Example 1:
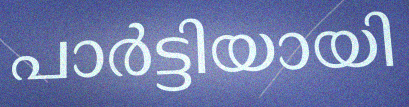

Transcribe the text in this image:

പാർട്ടിയായി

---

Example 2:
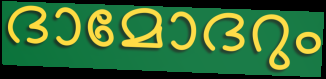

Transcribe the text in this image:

ദാമോദറും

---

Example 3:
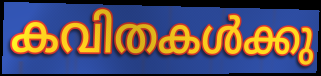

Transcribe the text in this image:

കവിതകൾക്കു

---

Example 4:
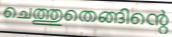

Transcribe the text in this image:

ചെത്തുതെങ്ങിന്റെ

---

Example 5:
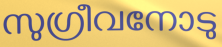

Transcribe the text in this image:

സുഗ്രീവനോടു